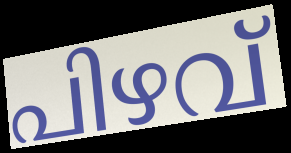
പിഴവ്